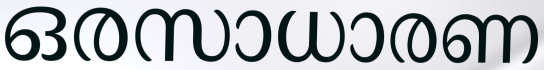
ഒരസാധാരണ